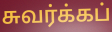
சுவர்க்கப்